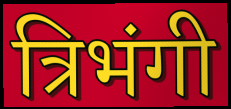
त्रिभंगी